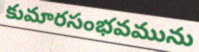
కుమారసంభవమును